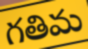
గతిమ